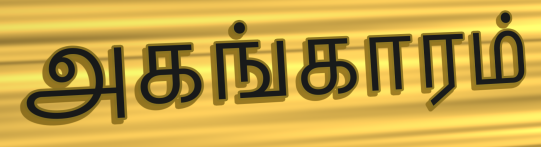
அகங்காரம்